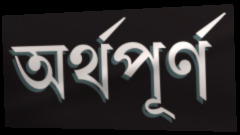
অৰ্থপূৰ্ণ